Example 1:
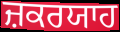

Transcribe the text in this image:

ਜ਼ਕਰਯਾਹ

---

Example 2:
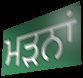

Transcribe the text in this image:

ਮੜਨਾਂ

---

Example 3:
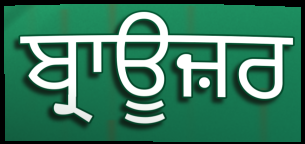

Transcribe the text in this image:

ਬ੍ਰਾਊਜ਼ਰ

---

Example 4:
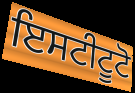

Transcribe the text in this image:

ਇਸਟੀਟੂਟੋ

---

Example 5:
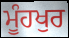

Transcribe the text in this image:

ਮੂੰਹਖੁਰ